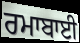
ਰਮਾਬਾਈ